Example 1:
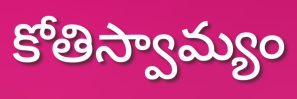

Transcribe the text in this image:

కోతిస్వామ్యం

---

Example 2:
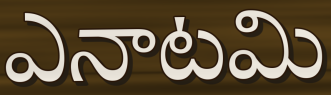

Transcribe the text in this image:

ఎనాటమి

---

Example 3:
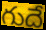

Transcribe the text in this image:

గుదే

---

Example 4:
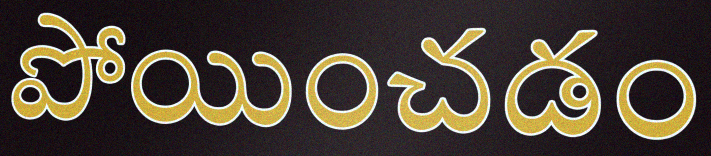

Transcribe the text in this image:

పోయించడం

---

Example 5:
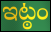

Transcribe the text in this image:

ఇట్ఠం